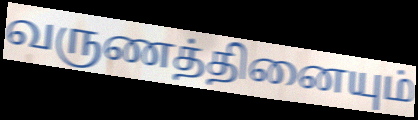
வருணத்தினையும்